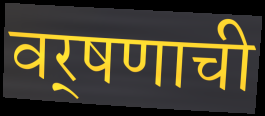
वर्षणाची